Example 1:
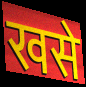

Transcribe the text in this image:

खसे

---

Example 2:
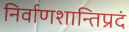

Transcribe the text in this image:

निर्वाणशान्तिप्रदं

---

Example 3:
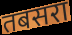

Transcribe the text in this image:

तबसरा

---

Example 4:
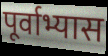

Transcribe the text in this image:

पूर्वाभ्यास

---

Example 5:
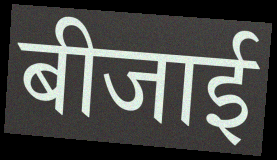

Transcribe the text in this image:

बीजाई